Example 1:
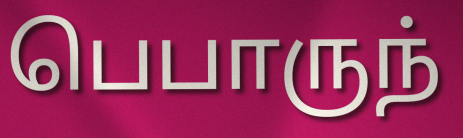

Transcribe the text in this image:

பெபாருந்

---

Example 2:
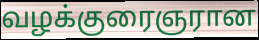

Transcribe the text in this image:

வழக்குரைஞரான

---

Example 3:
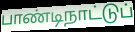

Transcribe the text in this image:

பாண்டிநாட்டுப்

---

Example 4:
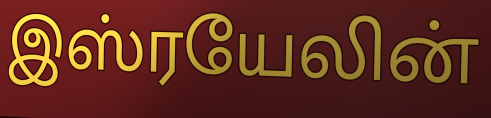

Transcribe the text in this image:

இஸ்ரயேலின்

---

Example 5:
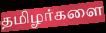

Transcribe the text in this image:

தமிழர்களை